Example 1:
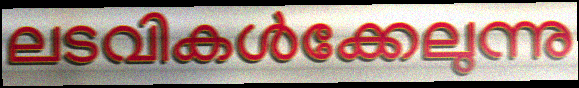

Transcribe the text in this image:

ലടവികൾക്കേലുന്നു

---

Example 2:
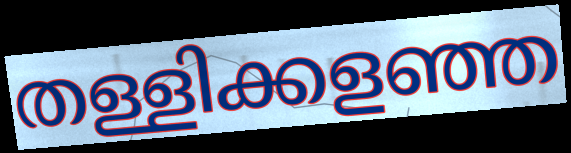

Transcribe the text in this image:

തള്ളിക്കളഞ്ഞ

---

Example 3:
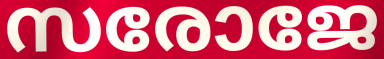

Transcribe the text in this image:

സരോജേ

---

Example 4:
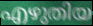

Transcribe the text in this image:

എഴുതിയ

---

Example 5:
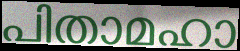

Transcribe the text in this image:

പിതാമഹാ